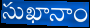
సుఖానాం